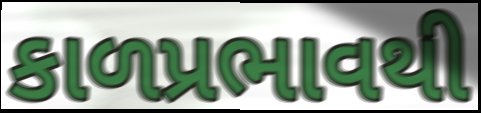
કાળપ્રભાવથી